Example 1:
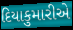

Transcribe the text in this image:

દિયાકુમારીએ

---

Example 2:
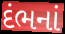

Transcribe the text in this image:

દંભનાં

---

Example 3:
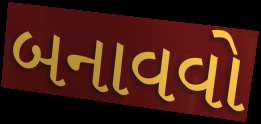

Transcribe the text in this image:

બનાવવો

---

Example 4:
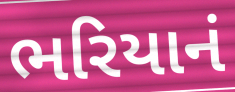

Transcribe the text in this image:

ભરિયાનં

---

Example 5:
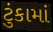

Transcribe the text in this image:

ટુંકામાં